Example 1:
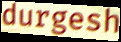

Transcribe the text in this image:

durgesh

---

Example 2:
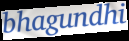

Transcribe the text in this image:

bhagundhi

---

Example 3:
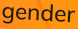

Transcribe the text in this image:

gender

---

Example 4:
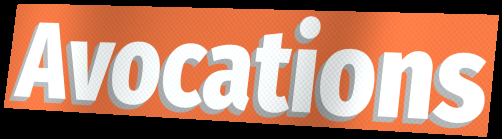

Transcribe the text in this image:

Avocations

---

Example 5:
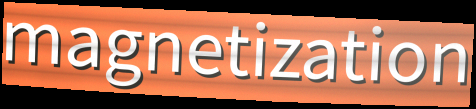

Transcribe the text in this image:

magnetization